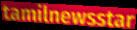
tamilnewsstar